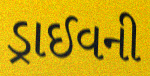
ડ્રાઈવની